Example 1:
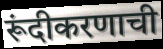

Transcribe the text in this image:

रूंदीकरणाची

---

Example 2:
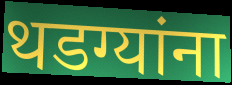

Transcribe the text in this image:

थडग्यांना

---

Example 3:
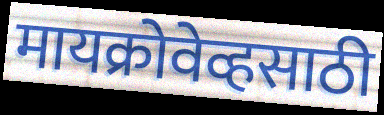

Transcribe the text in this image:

मायक्रोवेव्हसाठी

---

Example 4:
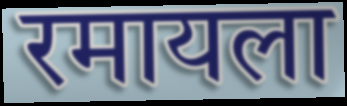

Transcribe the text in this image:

रमायला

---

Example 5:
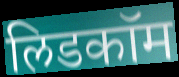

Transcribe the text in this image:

लिडकॉम